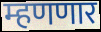
म्हणणार